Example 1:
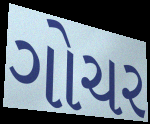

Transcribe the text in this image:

ગોચર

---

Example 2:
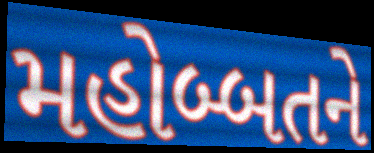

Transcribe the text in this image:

મહોબ્બતને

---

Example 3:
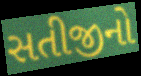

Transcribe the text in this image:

સતીજીનો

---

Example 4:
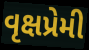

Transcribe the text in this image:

વૃક્ષપ્રેમી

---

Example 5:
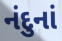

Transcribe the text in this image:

નંદુનાં